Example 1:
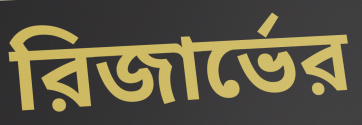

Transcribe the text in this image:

রিজার্ভের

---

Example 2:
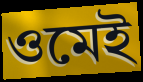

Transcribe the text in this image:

ওমেই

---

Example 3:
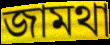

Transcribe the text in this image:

জামথা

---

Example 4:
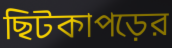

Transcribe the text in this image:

ছিটকাপড়ের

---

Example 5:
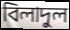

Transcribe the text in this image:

বিলাদুল